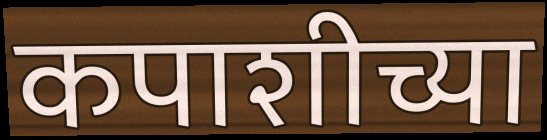
कपाशीच्या